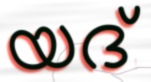
യദ്